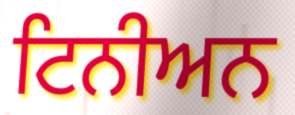
ਟਿਨੀਅਨ